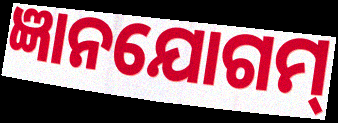
ଜ୍ଞାନଯୋଗମ୍